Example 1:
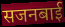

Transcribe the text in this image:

सजनबाई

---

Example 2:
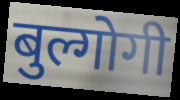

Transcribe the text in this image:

बुल्गोगी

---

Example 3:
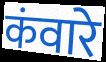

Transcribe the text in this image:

कंवारे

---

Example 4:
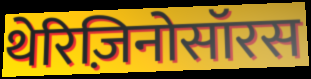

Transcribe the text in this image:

थेरिज़िनोसॉरस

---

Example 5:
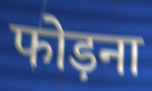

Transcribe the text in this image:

फोड़ना